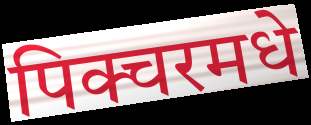
पिक्चरमधे